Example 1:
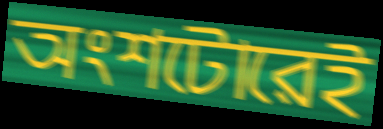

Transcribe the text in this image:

অংশটোৱেই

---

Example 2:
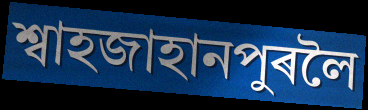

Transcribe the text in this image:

শ্বাহজাহানপুৰলৈ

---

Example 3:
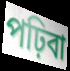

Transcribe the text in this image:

পঢ়িবা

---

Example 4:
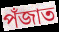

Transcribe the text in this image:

পঁজাত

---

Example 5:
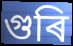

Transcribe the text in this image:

গুৰি